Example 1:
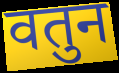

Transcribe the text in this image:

वतुन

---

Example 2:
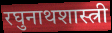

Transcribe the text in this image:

रघुनाथशास्त्री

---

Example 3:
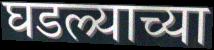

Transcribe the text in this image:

घडल्याच्या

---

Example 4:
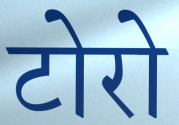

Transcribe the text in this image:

टोरो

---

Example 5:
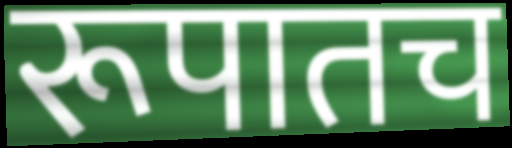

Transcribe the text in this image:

रूपातच